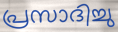
പ്രസാദിച്ചു